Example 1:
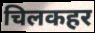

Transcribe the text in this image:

चिलकहर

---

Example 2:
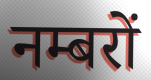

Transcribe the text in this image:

नम्बरों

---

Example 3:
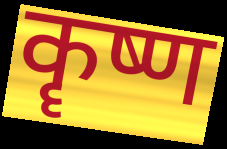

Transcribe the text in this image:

कॄष्ण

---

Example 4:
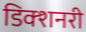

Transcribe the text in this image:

डिक्‍शनरी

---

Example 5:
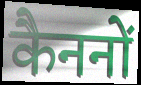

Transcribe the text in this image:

कैननों